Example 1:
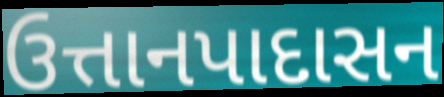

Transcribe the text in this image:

ઉત્તાનપાદાસન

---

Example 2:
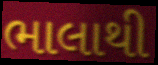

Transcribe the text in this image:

ભાલાથી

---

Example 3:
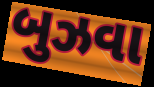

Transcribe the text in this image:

બુઝવા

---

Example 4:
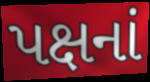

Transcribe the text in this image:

પક્ષનાં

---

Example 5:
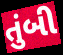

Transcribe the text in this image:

તુંબી